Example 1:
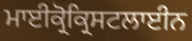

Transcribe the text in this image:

ਮਾਈਕ੍ਰੋਕ੍ਰਿਸਟਲਾਈਨ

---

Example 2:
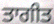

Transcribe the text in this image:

ਤਾਗੀਤ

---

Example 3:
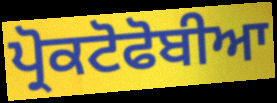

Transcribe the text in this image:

ਪ੍ਰੋਕਟੋਫੋਬੀਆ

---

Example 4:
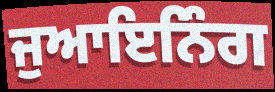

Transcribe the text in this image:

ਜੁਆਇਨਿੰਗ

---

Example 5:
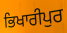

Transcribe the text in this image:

ਭਿਖਾਰੀਪੁਰ